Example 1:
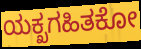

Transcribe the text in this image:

ಯಕ್ಖಗಹಿತಕೋ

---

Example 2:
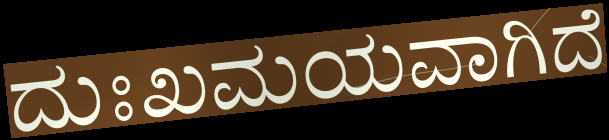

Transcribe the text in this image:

ದುಃಖಮಯವಾಗಿದೆ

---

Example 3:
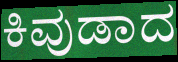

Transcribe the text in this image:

ಕಿವುಡಾದ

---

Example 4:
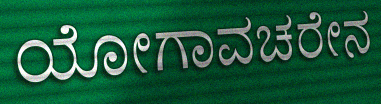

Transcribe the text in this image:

ಯೋಗಾವಚರೇನ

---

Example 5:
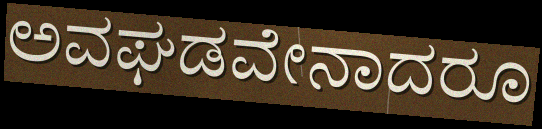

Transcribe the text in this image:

ಅವಘಡವೇನಾದರೂ